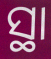
ସ୍ଥା